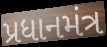
પ્રધાનમંત્ર